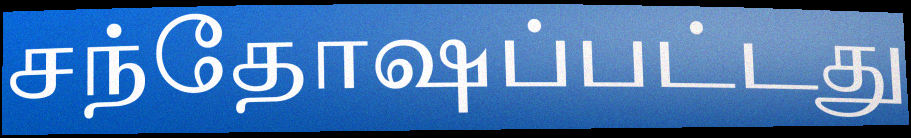
சந்தோஷப்பட்டது